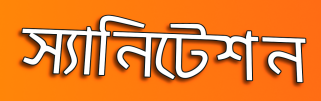
স্যানিটেশন